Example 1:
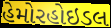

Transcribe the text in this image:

હેમોરહોઇડલ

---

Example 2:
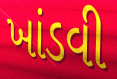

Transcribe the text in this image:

ખાંડવી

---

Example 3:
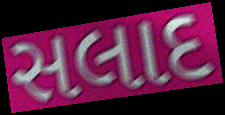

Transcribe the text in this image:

સલાદ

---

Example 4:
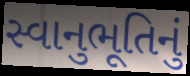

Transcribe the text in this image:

સ્વાનુભૂતિનું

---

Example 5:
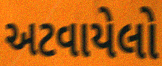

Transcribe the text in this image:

અટવાયેલો